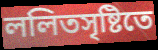
ললিতসৃষ্টিতে